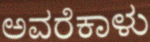
ಅವರೆಕಾಳು